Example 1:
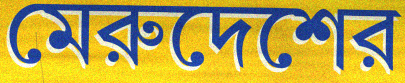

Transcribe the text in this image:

মেরুদেশের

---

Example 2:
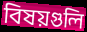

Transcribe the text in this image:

বিষয়গুলি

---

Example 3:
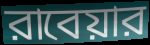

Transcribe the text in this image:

রাবেয়ার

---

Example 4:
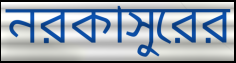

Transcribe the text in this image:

নরকাসুরের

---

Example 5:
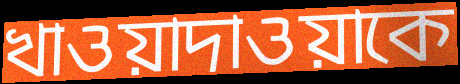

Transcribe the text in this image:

খাওয়াদাওয়াকে